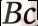
Bc